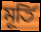
মূৰ্তি